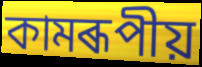
কামৰূপীয়